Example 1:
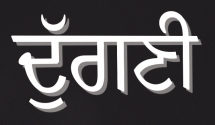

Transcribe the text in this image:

ਦੁੱਗਣੀ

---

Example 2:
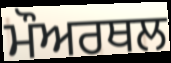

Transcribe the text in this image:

ਮੌਅਰਥਲ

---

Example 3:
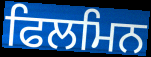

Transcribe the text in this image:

ਫਿਲਮਿਨ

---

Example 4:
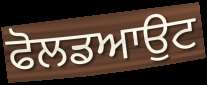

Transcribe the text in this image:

ਫੋਲਡਆਉਟ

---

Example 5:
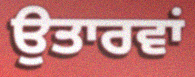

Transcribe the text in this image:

ਉਤਾਰਵਾਂ